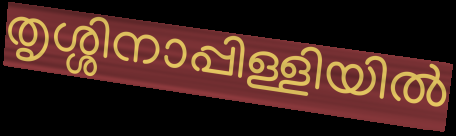
തൃശ്ശിനാപ്പിള്ളിയിൽ